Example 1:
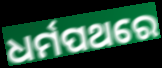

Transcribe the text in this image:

ଧର୍ମପଥରେ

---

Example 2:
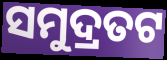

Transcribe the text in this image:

ସମୁଦ୍ରତଟ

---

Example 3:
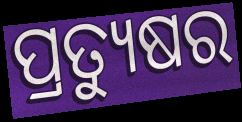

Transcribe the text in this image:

ପ୍ରତ୍ୟୁଷର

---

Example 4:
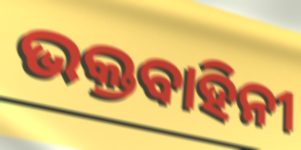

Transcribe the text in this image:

ଭକ୍ତବାହିନୀ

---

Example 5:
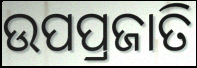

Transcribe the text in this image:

ଉପପ୍ରଜାତି